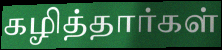
கழித்தார்கள்